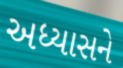
અધ્યાસને